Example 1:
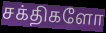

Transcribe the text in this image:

சக்திகளோ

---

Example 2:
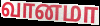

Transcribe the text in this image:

வானமா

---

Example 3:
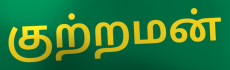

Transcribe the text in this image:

குற்றமன்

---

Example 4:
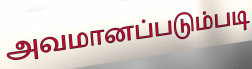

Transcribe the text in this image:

அவமானப்படும்படி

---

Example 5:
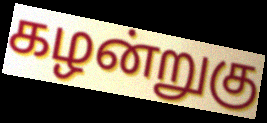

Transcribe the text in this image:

கழன்றுகு